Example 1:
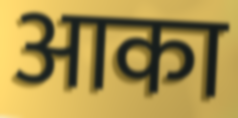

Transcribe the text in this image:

आका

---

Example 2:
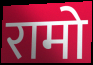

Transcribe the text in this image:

रामो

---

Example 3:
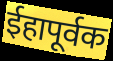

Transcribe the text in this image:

ईहापूर्वक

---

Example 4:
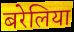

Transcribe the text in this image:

बरेलिया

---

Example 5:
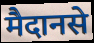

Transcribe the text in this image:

मैदानसे